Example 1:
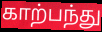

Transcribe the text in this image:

காற்பந்து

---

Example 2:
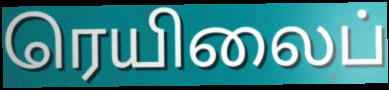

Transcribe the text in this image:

ரெயிலைப்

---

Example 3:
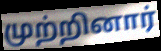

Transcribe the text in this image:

முற்றினார்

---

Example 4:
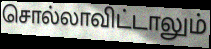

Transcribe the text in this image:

சொல்லாவிட்டாலும்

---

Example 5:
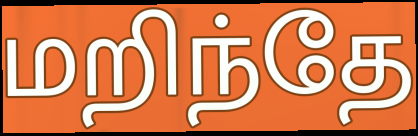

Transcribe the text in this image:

மறிந்தே